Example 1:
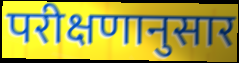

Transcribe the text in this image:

परीक्षणानुसार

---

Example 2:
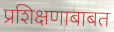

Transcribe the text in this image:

प्रशिक्षणाबाबत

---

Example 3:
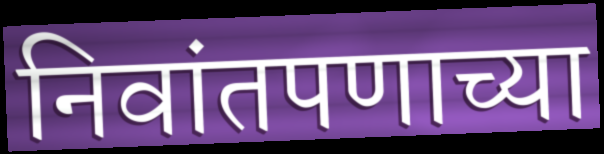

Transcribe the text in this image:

निवांतपणाच्या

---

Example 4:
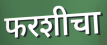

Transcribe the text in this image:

फरशीचा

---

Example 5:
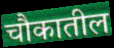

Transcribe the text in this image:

चौकातील